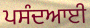
ਪਸੰਦਆਈ